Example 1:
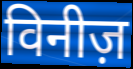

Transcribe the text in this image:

विनीज़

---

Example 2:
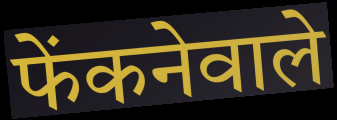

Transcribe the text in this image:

फेंकनेवाले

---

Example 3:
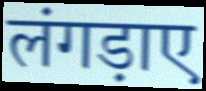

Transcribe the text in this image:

लंगड़ाए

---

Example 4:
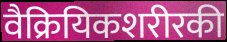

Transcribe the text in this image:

वैक्रियिकशरीरकी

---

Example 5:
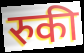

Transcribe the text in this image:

रुकी